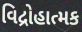
વિદ્રોહાત્મક